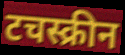
टचस्क्रीन